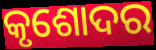
କୃଶୋଦର